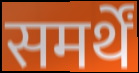
समर्थें